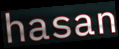
hasan